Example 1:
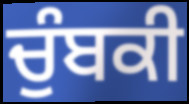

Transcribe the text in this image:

ਚੁੰਬਕੀ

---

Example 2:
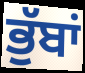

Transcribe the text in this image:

ਭੁੱਬਾਂ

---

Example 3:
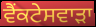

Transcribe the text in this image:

ਵੈਂਕਟੇਸਵਾੜਾ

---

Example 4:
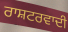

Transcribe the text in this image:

ਰਾਸ਼ਟਰਵਾਦੀ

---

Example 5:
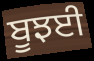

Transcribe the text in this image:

ਬੂਝਈ